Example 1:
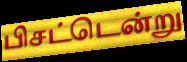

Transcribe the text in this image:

பிசட்டென்று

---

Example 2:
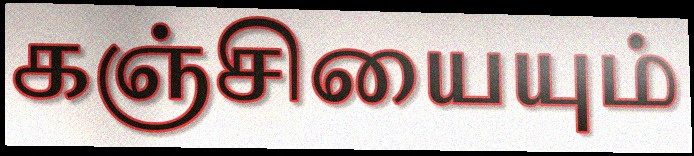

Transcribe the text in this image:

கஞ்சியையும்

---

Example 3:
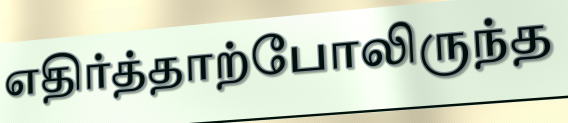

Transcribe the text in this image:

எதிர்த்தாற்போலிருந்த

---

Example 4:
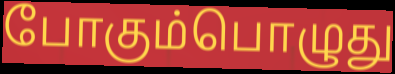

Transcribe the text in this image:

போகும்பொழுது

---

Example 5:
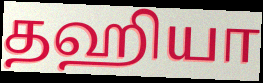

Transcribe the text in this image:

தஹியா